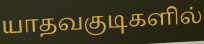
யாதவகுடிகளில்